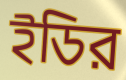
ইডির